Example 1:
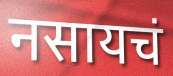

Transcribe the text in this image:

नसायचं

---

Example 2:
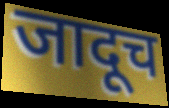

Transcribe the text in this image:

जादूच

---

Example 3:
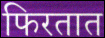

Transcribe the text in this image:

फिरतात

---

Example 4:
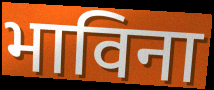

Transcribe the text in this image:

भाविना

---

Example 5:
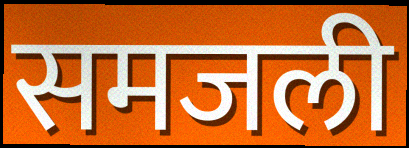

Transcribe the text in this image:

समजली